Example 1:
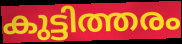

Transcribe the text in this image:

കുട്ടിത്തരം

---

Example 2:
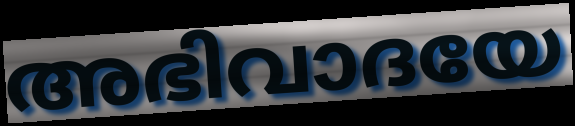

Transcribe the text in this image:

അഭിവാദയേ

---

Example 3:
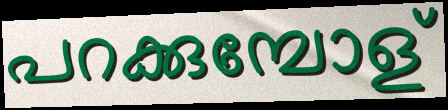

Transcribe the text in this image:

പറക്കുമ്പോള്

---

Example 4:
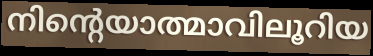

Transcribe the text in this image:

നിന്റെയാത്മാവിലൂറിയ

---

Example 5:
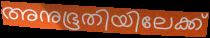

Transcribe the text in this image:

അനുഭൂതിയിലേക്ക്